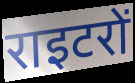
राइटरों